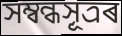
সম্বন্ধসূত্ৰৰ